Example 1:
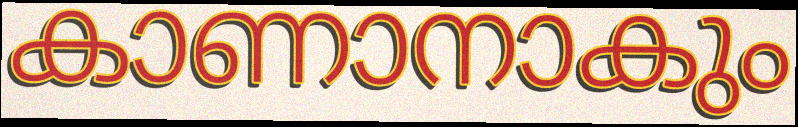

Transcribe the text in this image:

കാണാനാകും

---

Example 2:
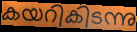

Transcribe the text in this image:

കയറികിടന്നു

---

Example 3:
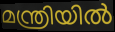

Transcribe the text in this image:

മന്ത്രിയിൽ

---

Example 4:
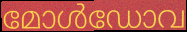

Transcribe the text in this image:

മോൾഡോവ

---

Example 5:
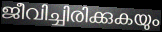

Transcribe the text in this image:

ജീവിച്ചിരിക്കുകയും